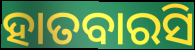
ହାତବାରସି